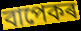
বাপেকৰ